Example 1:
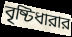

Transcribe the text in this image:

বৃষ্টিধারার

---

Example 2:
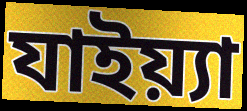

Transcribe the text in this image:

যাইয়্যা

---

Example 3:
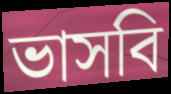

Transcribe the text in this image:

ভাসবি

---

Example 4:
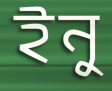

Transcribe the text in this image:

ইনু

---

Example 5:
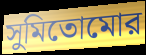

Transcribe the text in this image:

সুমিতোমোর